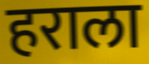
हराला